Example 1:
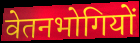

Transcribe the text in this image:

वेतनभोगियों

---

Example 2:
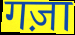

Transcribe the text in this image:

गज़ा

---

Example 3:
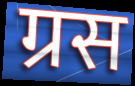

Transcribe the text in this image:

ग्रस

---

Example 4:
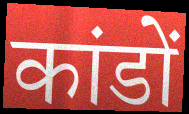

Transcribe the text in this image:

कांडों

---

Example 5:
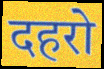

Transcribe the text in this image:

दहरो